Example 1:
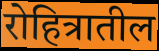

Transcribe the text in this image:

रोहित्रातील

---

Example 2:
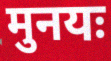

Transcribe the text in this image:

मुनयः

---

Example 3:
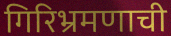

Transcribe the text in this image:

गिरिभ्रमणाची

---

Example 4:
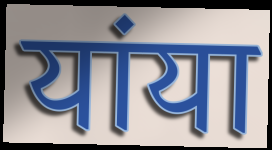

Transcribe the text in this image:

यांया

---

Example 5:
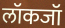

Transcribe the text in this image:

लॉकजॉ